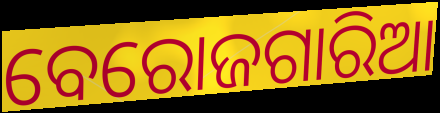
ବେରୋଜଗାରିଆ